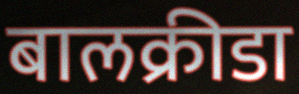
बालक्रीडा